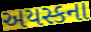
અયસ્કના